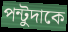
পন্টুদাকে